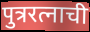
पुत्ररत्नाची